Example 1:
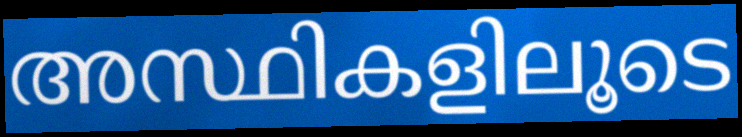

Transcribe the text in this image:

അസ്ഥികളിലൂടെ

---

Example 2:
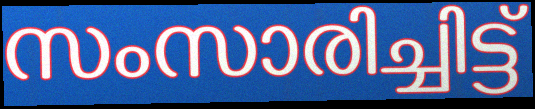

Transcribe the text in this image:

സംസാരിച്ചിട്ട്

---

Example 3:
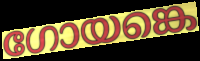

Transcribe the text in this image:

ഗോയങ്കെ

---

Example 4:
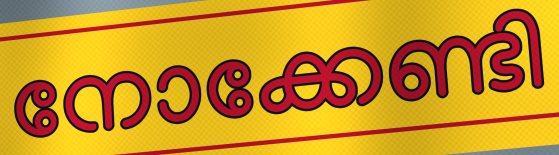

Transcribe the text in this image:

നോക്കേണ്ടി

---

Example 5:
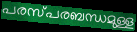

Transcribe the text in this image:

പരസ്പരബന്ധമുള്ള